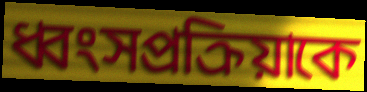
ধ্বংসপ্রক্রিয়াকে